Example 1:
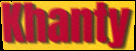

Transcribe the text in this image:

Khanty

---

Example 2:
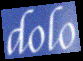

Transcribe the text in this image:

dolo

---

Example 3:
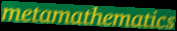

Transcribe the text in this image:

metamathematics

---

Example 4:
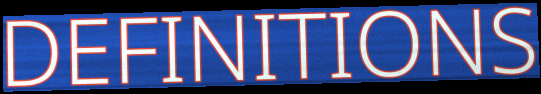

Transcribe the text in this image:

DEFINITIONS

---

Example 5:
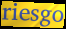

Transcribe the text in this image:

riesgo